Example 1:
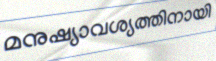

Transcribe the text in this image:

മനുഷ്യാവശ്യത്തിനായി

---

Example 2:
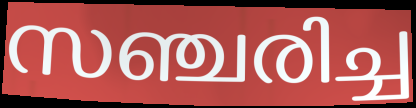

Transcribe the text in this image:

സഞ്ചരിച്ച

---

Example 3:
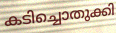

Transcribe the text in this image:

കടിച്ചൊതുക്കി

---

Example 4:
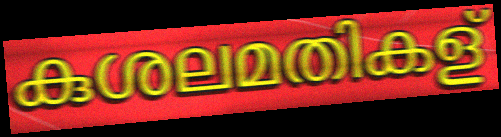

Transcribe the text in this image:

കുശലമതികള്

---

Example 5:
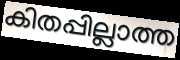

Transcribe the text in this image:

കിതപ്പില്ലാത്ത